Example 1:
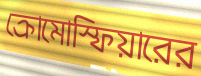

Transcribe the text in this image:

ক্রোমোস্ফিয়ারের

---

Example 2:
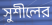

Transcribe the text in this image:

সুশীলের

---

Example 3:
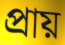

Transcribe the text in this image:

প্রায়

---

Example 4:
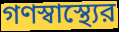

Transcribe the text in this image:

গণস্বাস্থ্যের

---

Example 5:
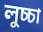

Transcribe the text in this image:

লুচ্চা